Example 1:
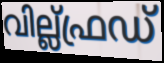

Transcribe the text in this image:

വില്ല്ഫ്രഡ്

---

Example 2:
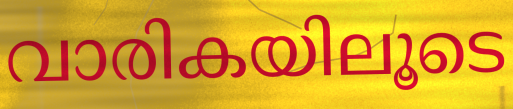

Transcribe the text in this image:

വാരികയിലൂടെ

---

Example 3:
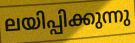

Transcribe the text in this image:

ലയിപ്പിക്കുന്നു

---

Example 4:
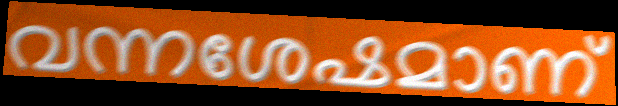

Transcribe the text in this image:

വന്നശേഷമാണ്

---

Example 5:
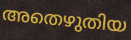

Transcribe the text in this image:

അതെഴുതിയ